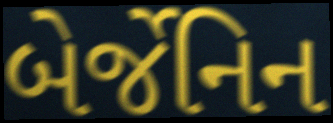
બેર્જેનિન